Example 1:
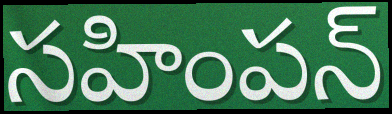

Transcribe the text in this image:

సహింపన్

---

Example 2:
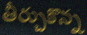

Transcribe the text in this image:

తీర్చుకొన్న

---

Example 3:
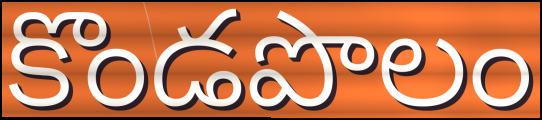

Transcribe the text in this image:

కొండపొలం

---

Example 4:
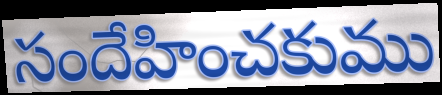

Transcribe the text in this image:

సందేహించకుము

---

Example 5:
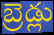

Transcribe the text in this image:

బ్రెడ్లు